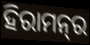
ହିରାମନ୍‍ର